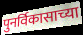
पुनर्विकासाच्या